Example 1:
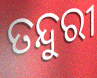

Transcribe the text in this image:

ତନ୍ଦୁରୀ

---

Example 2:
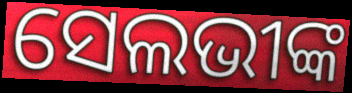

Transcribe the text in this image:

ସେଲଭୀଙ୍କ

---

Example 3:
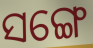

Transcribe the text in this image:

ସଙ୍ଗେ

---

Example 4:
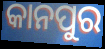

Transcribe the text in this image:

କାନପୁର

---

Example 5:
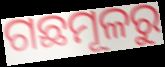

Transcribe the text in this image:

ଗଛମୂଳରୁ